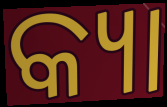
କ୍ୟା